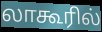
லாகூரில்